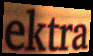
ektra